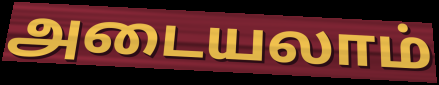
அடையலாம்